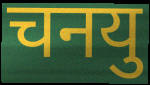
चनयु